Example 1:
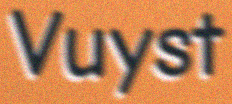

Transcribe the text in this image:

Vuyst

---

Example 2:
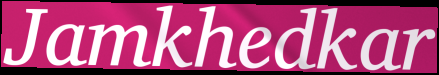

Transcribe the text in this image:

Jamkhedkar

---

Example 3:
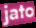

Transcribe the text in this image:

jato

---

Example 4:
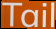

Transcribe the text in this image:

Tail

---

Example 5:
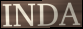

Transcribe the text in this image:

INDA